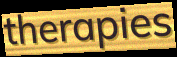
therapies